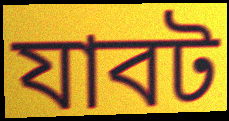
যাবট